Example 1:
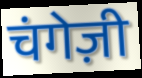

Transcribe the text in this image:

चंगेज़ी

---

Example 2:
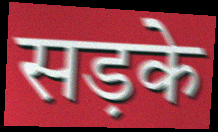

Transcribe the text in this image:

सड़के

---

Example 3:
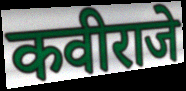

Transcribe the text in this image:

कवीराजे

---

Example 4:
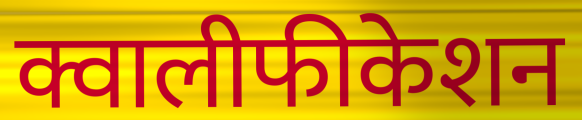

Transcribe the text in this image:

क्वालीफीकेशन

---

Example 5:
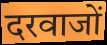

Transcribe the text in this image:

दरवाजों